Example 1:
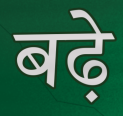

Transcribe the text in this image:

बढ़े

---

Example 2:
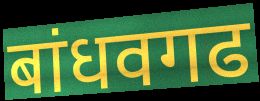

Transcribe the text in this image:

बांधवगढ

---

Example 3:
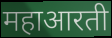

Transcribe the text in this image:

महाआरती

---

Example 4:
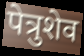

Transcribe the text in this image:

पेत्रुशेव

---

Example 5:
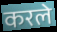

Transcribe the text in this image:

करले